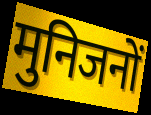
मुनिजनों